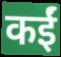
कईं